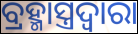
ବ୍ରହ୍ମାସ୍ତ୍ରଦ୍ୱାରା